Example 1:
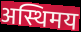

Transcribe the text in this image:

अस्थिमय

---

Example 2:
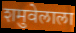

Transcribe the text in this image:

शमुवेलाला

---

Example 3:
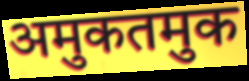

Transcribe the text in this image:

अमुकतमुक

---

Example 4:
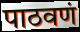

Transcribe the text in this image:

पाठवणं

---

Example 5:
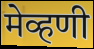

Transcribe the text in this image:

मेव्हणी